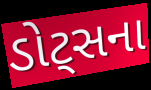
ડોટ્સના